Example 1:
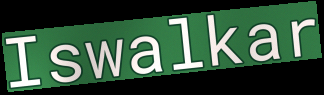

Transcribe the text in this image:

Iswalkar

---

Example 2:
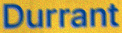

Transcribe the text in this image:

Durrant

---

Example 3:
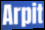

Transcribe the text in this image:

Arpit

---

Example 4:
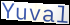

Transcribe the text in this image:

Yuval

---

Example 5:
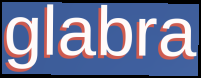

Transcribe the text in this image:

glabra